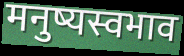
मनुष्यस्वभाव